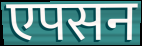
एपसन